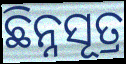
ଛିନ୍ନସୂତ୍ର